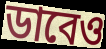
ডাবেও